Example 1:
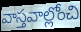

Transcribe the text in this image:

వాస్తవాల్లోంచి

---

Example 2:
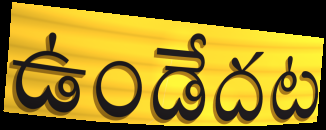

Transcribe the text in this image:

ఉండేదట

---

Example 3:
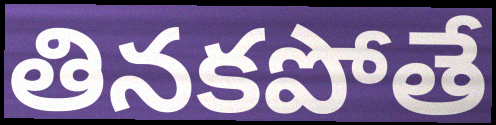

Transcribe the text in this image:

తినకపోతే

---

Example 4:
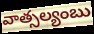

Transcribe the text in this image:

వాత్సల్యంబు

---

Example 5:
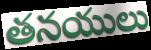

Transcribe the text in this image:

తనయులు